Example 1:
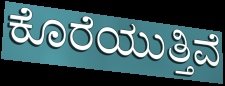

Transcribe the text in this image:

ಕೊರೆಯುತ್ತಿವೆ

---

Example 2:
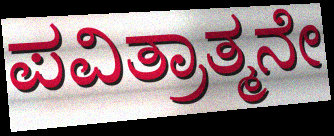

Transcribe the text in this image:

ಪವಿತ್ರಾತ್ಮನೇ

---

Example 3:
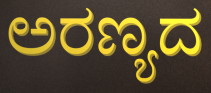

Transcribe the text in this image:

ಅರಣ್ಯದ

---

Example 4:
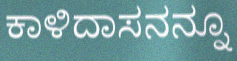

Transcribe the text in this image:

ಕಾಳಿದಾಸನನ್ನೂ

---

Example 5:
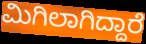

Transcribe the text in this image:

ಮಿಗಿಲಾಗಿದ್ದಾರೆ